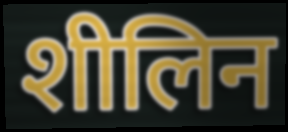
शीलिन